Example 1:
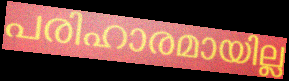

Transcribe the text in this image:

പരിഹാരമായില്ല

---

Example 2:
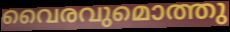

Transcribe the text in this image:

വൈരവുമൊത്തു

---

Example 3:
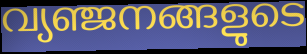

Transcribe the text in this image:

വ്യഞ്ജനങ്ങളുടെ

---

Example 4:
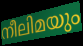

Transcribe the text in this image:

നീലിമയും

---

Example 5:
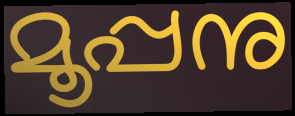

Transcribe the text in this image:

മൂപ്പനു